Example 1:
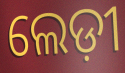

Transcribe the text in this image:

ଲେଡ଼ୀ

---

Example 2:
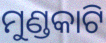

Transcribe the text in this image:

ମୁଣ୍ଡକାଟି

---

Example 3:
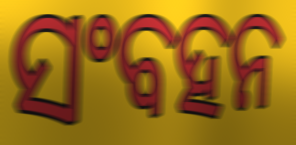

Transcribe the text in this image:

ସଂବହନ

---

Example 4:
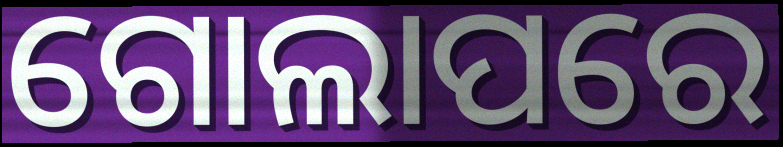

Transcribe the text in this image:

ଗୋଲାପରେ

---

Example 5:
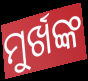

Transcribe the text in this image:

ମୁର୍ଖଙ୍କ